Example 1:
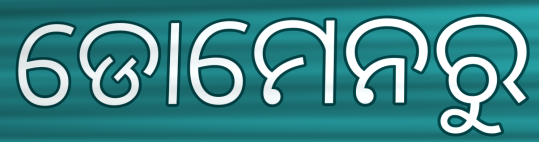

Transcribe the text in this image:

ଡୋମେନରୁ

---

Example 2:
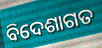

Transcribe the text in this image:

ବିଦେଶାଗତ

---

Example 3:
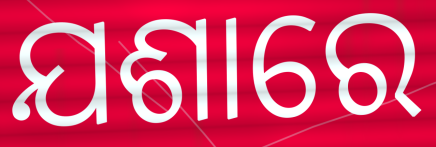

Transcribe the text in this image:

ଯଶାରେ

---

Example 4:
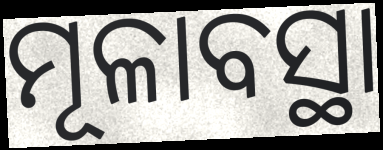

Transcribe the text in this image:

ମୂଳାବସ୍ଥା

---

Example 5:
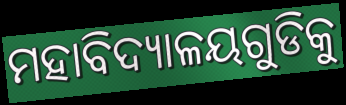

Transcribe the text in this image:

ମହାବିଦ୍ୟାଳୟଗୁଡିକୁ